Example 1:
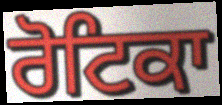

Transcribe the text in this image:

ਰੋਟਿਕਾ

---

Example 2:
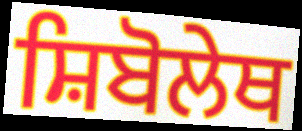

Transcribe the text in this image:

ਸ਼ਿਬੋਲੇਥ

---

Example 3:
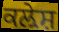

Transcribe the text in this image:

ਕਲ਼ੇਸ਼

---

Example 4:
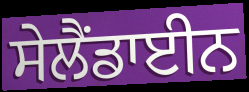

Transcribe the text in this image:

ਸੇਲੈਂਡਾਈਨ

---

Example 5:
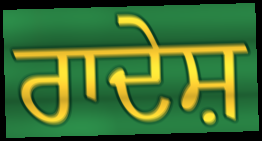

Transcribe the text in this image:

ਰਾਦੇਸ਼